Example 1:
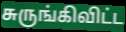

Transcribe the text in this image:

சுருங்கிவிட்ட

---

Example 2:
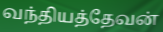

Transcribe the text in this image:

வந்தியத்தேவன்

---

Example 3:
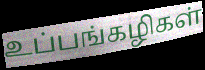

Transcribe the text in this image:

உப்பங்கழிகள்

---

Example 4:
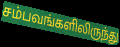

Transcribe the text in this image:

சம்பவங்களிலிருந்து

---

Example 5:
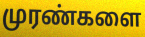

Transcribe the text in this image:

முரண்களை